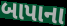
બાપાના